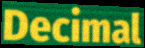
Decimal